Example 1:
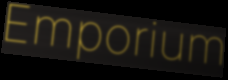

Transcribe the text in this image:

Emporium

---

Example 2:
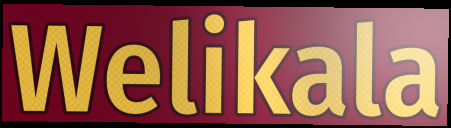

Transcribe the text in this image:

Welikala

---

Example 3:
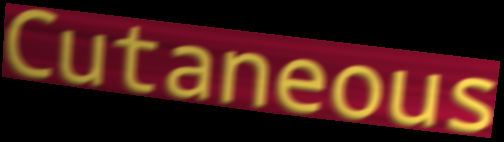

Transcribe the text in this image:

Cutaneous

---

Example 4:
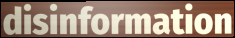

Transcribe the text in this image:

disinformation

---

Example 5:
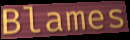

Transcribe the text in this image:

Blames